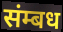
संम्बध